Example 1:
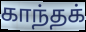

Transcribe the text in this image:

காந்தக்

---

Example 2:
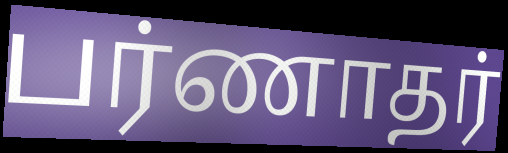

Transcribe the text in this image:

பர்ணாதர்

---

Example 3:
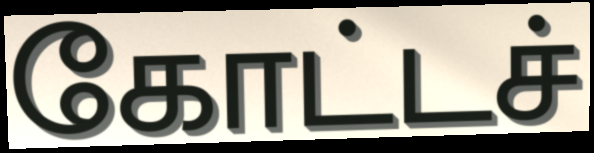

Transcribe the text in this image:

கோட்டச்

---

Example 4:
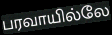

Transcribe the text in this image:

பரவாயில்லே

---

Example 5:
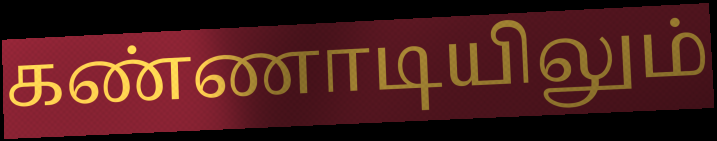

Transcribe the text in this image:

கண்ணாடியிலும்